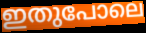
ഇതുപോലെ